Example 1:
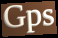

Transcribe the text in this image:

Gps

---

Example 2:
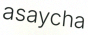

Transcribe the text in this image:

asaycha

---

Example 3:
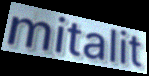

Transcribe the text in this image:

mitalit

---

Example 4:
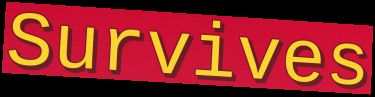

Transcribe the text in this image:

Survives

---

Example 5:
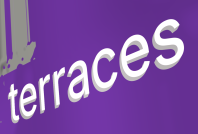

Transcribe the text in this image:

terraces